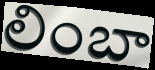
లింబా